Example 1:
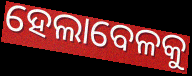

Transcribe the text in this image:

ହେଲାବେଳକୁ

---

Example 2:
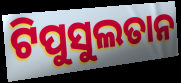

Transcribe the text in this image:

ଟିପୁସୁଲତାନ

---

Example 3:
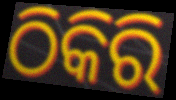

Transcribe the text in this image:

ଠିକିରି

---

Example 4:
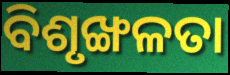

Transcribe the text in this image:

ବିଶୃଙ୍ଖଳତା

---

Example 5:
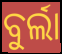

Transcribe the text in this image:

ବୁର୍ଲା